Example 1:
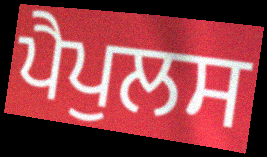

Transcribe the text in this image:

ਪੈਪੁਲਸ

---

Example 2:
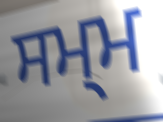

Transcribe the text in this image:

ਸਮ੍ਮ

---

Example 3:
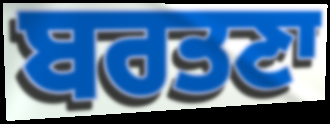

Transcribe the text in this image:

ਬਰਤਣਾ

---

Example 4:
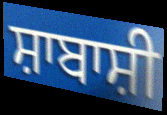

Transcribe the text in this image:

ਸ਼ਾਬਾਸ਼ੀ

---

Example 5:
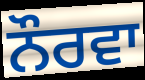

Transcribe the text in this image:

ਨੌਰਵਾ